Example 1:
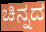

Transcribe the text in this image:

ಚಿನ್ನದ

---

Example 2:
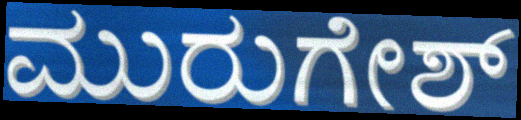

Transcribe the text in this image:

ಮುರುಗೇಶ್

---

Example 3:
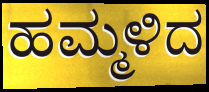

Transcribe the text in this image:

ಹಮ್ಮಳಿದ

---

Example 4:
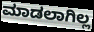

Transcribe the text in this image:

ಮಾಡಲಾಗಿಲ್ಲ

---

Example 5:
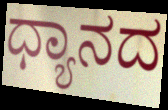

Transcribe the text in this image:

ಧ್ಯಾನದ